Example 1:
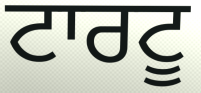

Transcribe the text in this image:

ਟਾਰਟੂ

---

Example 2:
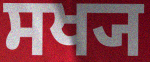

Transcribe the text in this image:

ਸਖ੍ਯ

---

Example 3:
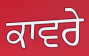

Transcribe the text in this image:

ਕਾਵਰੇ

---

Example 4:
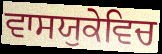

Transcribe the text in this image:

ਵਾਸਯੁਕੇਵਿਚ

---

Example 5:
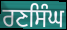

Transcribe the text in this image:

ਰਣਸਿੰਘ